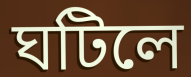
ঘটিলে